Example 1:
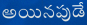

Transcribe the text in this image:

అయినపుడే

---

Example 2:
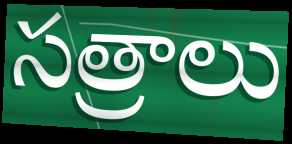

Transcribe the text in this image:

సత్రాలు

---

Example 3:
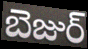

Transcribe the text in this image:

బెజుర్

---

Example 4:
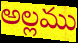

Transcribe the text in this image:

అల్లము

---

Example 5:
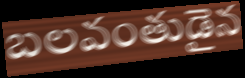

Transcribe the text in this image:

బలవంతుడైన